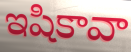
ఇషికావా